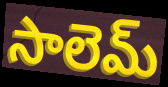
సాలెమ్